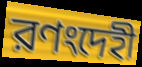
রণংদেহী